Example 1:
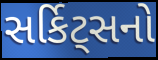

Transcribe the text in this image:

સર્કિટ્સનો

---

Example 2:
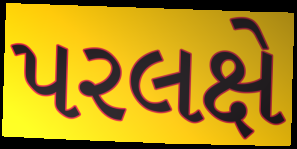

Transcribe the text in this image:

પરલક્ષે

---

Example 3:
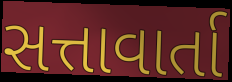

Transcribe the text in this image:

સત્તાવાર્તા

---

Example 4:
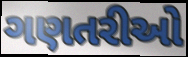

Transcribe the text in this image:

ગણતરીઓ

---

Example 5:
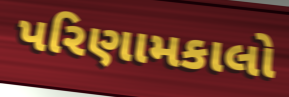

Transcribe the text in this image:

પરિણામકાલો